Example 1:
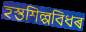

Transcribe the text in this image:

হস্তশিল্পবিধৰ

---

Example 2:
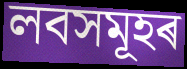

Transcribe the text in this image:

লবসমূহৰ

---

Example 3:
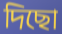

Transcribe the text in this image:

দিছো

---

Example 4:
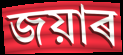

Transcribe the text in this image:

জয়াৰ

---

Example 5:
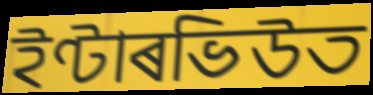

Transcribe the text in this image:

ইণ্টাৰভিউত